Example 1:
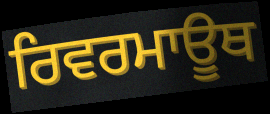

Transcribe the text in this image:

ਰਿਵਰਮਾਊਥ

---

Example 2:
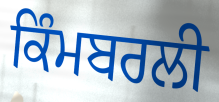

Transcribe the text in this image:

ਕਿੰਮਬਰਲੀ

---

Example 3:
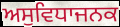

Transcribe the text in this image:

ਅਸੁਵਿਧਾਜਨਕ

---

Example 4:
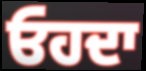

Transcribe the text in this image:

ਓਹਦਾ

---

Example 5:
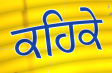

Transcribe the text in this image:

ਕਹਿਕੇ